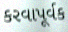
કરવાપૂર્વક